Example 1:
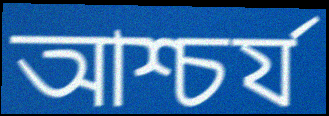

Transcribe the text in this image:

আশ্চৰ্য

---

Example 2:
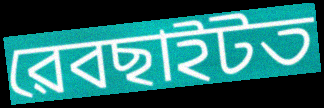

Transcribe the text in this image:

ৱেবছাইটত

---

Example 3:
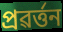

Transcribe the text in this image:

প্ৰৱৰ্ত্তন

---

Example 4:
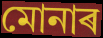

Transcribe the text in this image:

মোনাৰ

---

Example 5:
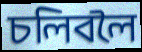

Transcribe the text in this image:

চলিবলৈ